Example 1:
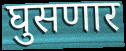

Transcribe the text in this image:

घुसणार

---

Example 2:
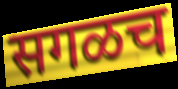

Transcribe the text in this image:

सगळच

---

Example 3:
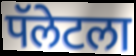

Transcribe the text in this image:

पॅलेटला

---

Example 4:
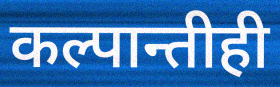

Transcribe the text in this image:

कल्पान्तीही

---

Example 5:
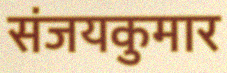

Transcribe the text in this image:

संजयकुमार